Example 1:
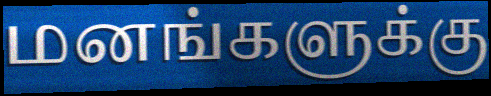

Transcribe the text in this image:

மனங்களுக்கு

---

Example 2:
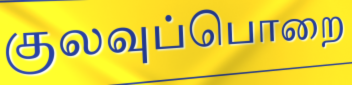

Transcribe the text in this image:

குலவுப்பொறை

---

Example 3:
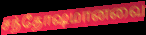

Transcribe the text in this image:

சந்தோஷமானவை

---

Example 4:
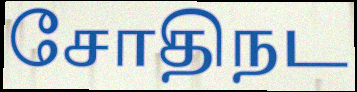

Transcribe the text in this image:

சோதிநட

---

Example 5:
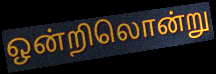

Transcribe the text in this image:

ஒன்றிலொன்று